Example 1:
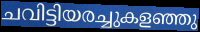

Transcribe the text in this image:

ചവിട്ടിയരച്ചുകളഞ്ഞു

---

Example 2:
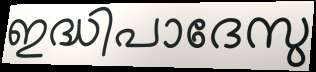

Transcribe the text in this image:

ഇദ്ധിപാദേസു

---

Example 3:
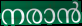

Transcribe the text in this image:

നരാൻ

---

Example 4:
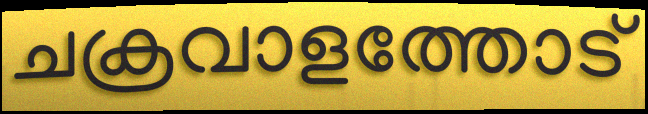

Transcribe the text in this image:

ചക്രവാളത്തോട്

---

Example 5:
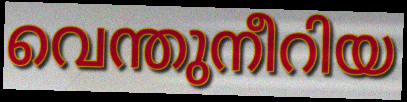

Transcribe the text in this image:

വെന്തുനീറിയ